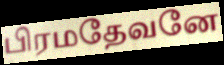
பிரமதேவனே